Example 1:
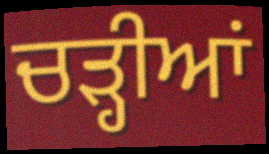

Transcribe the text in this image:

ਚੜ੍ਹੀਆਂ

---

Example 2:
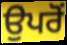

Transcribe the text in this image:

ਉਪਰੋਂ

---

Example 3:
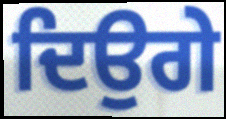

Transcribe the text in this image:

ਦਿਉਗੇ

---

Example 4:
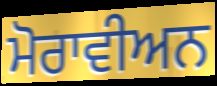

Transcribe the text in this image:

ਮੋਰਾਵੀਅਨ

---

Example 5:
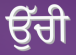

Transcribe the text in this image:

ਉੱਚੀ